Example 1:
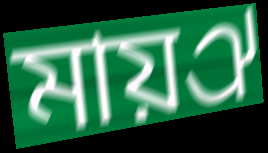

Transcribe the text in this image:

মায়ঐ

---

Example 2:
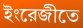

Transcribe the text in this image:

ইংরেজীতে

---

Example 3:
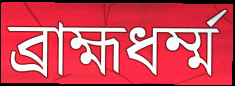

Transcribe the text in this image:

ব্রাহ্মধর্ম্ম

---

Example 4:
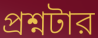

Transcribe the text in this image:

প্রশ্নটার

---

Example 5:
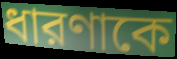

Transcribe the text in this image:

ধারণাকে